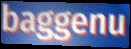
baggenu